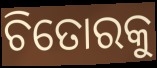
ଚିତୋରକୁ